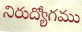
నిరుద్యోగము